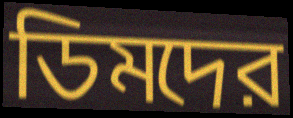
ডিমদের